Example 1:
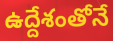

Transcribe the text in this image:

ఉద్దేశంతోనే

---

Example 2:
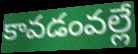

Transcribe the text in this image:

కావడంవల్లే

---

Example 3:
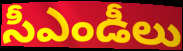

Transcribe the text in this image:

సీఎండీలు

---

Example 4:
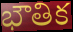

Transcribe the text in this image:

భౌతిక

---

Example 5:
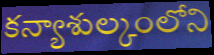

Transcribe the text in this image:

కన్యాశుల్కంలోని